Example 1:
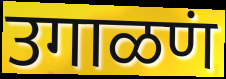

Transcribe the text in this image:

उगाळणं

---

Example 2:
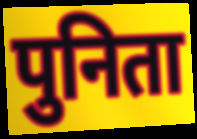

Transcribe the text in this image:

पुनिता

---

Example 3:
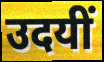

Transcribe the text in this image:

उदयीं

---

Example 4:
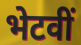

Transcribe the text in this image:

भेटवीं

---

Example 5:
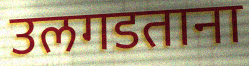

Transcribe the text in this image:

उलगडताना